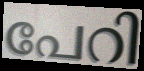
പേറി